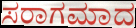
ಸರಾಗಮಾದ